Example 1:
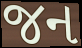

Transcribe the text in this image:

જન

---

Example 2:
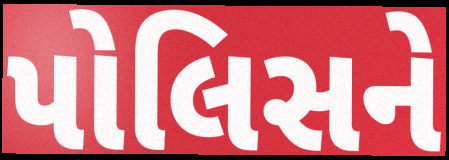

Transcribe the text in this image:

પોલિસને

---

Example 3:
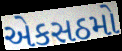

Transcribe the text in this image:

એકસઠમો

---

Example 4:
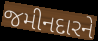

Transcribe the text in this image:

જમીનદારને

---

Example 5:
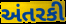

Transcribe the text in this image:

અંતરકી